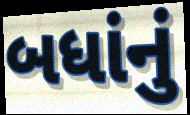
બધાંનું